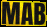
MAB